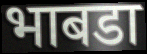
भाबडा